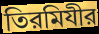
তিরমিযীর